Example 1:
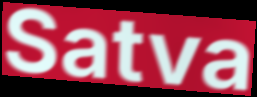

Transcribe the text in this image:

Satva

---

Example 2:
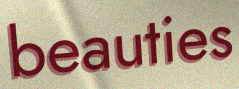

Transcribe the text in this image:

beauties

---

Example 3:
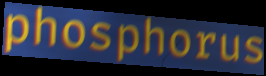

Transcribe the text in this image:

phosphorus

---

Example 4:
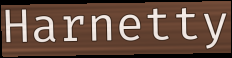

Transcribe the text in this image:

Harnetty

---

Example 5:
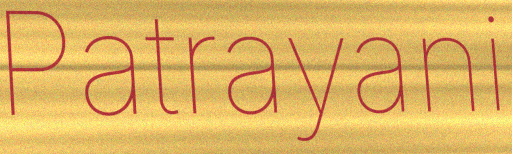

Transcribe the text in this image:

Patrayani